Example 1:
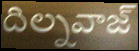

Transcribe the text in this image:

దిల్నవాజ్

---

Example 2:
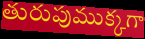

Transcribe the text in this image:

తురుపుముక్కగా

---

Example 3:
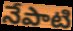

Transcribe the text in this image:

నేపాటి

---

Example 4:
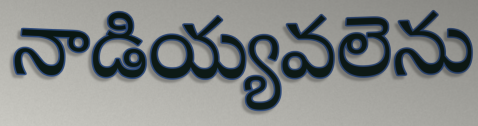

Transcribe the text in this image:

నాడియ్యవలెను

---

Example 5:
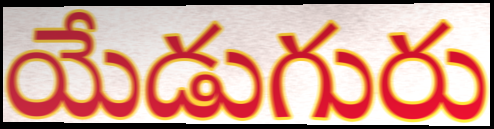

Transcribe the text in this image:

యేడుగురు